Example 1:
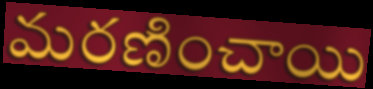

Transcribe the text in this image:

మరణించాయి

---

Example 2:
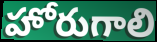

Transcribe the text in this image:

హోరుగాలి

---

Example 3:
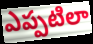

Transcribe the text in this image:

ఎప్పటిలా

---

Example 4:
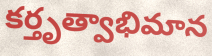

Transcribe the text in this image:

కర్తృత్వాభిమాన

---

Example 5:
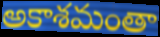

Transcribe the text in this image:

అకాశమంతా